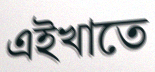
এইখাতে